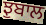
ਝੁਬਾਲ